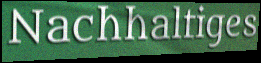
Nachhaltiges